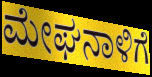
ಮೇಘನಾಳಿಗೆ